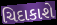
ચિદાકાશે